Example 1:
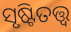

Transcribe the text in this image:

ସୃଷ୍ଟିତତ୍ତ୍ୱ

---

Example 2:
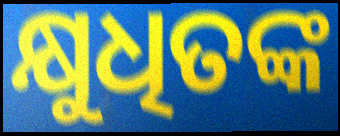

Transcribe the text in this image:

କ୍ଷୁଧିତଙ୍କ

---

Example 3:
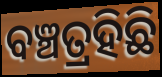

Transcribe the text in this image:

ବଞ୍ଚତ୍ରହିଛି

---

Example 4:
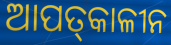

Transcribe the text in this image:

ଆପତ୍‌କାଳୀନ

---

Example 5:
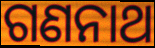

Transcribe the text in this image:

ଗଣନାଥ